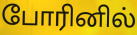
போரினில்